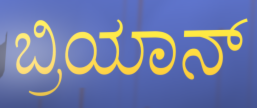
ಬ್ರಿಯಾನ್